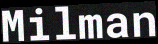
Milman